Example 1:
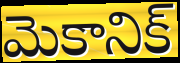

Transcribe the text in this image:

మెకానిక్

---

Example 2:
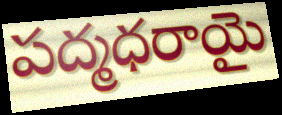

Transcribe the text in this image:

పద్మధరాయై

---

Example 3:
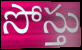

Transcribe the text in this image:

సోస్తు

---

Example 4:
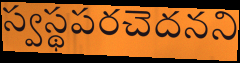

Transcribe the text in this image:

స్వస్థపరచెదనని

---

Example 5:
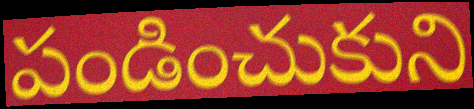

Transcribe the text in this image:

పండించుకుని